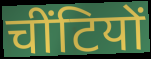
चींटियों